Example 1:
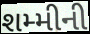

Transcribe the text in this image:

શમ્મીની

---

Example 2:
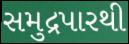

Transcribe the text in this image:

સમુદ્રપારથી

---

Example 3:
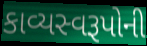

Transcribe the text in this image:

કાવ્યસ્વરૂપોની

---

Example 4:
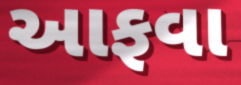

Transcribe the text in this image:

આફવા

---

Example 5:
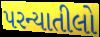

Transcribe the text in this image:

પરન્યાતીલો